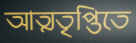
আত্মতৃপ্তিতে